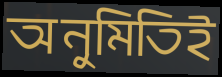
অনুমিতিই